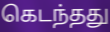
கெடந்தது